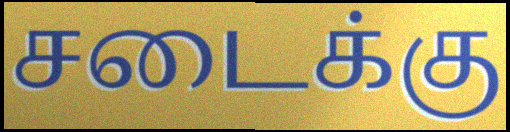
சடைக்கு